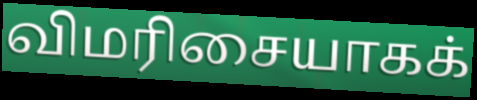
விமரிசையாகக்